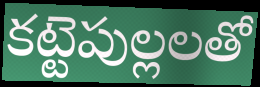
కట్టెపుల్లలతో